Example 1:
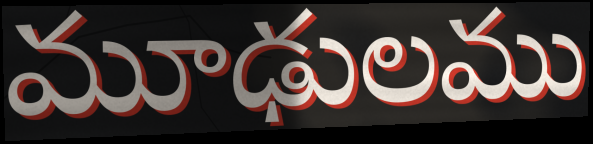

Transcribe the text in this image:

మూఢులము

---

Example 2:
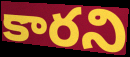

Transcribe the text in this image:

కారని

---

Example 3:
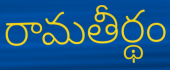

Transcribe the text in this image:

రామతీర్థం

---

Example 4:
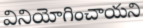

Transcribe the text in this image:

వినియోగించాయని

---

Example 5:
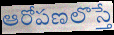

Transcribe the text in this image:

ఆరోపణలొస్తే